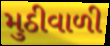
મુઠીવાળી